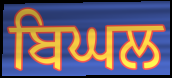
ਬਿਘਲ